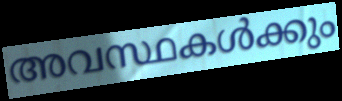
അവസ്ഥകൾക്കും